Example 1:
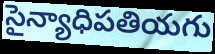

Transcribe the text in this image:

సైన్యాధిపతియగు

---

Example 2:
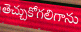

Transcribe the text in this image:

తెచ్చుకోగలిగాను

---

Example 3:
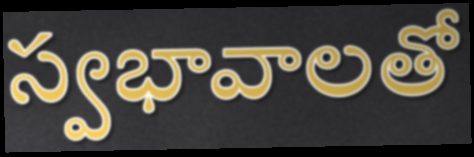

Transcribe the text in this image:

స్వభావాలతో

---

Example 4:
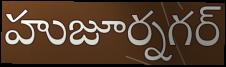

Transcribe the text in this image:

హుజూర్నగర్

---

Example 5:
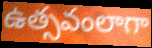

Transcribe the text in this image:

ఉత్సవంలాగా